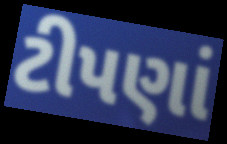
ટીપણાં